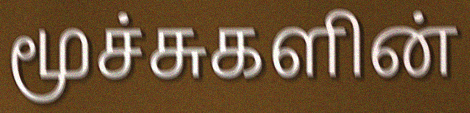
மூச்சுகளின்